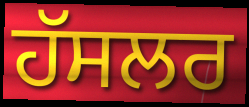
ਹੱਸਲਰ